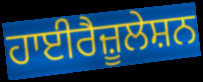
ਹਾਈਰੈਜ਼ੂਲੇਸ਼ਨ